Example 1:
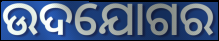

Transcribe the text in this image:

ଉଦଯୋଗର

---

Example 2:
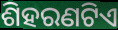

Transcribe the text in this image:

ଶିହରଣଟିଏ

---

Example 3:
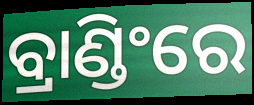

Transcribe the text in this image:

ବ୍ରାଣ୍ଡିଂରେ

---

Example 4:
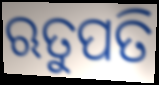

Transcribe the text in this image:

ଋତୁପତି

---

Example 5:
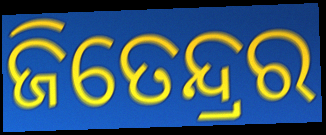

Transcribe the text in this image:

ଜିତେନ୍ଦ୍ରର